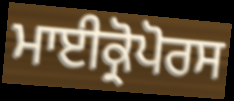
ਮਾਈਕ੍ਰੋਪੋਰਸ